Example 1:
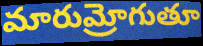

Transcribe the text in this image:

మారుమ్రోగుతూ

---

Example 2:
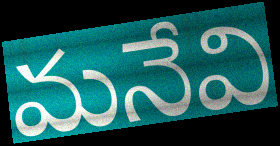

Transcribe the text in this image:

మనేవి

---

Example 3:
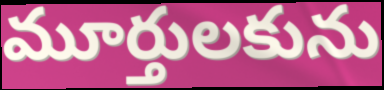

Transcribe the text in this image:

మూర్తులకును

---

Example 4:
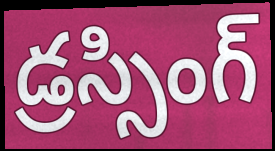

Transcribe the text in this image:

డ్రస్సింగ్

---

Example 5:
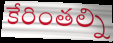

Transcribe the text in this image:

కేరింతల్ని